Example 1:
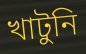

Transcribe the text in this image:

খাটুনি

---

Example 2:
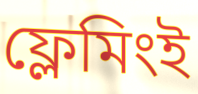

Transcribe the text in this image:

ফ্লেমিংই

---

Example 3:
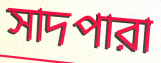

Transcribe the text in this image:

সাদপারা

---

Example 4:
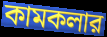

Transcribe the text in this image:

কামকলার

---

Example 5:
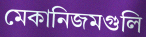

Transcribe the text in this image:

মেকানিজমগুলি